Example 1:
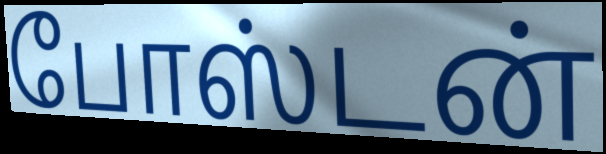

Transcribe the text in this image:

போஸ்டன்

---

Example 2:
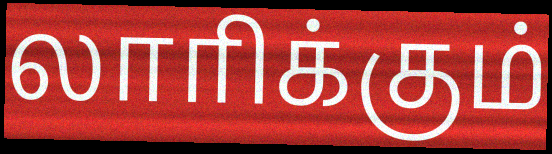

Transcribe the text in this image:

லாரிக்கும்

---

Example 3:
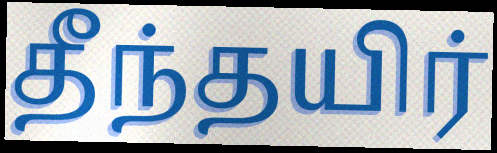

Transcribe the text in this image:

தீந்தயிர்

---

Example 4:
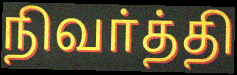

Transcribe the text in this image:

நிவர்த்தி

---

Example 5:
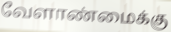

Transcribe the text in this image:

வேளாண்மைக்கு